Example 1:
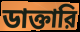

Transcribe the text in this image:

ডাক্তারি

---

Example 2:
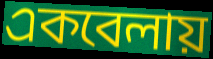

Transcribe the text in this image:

একবেলায়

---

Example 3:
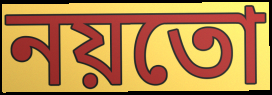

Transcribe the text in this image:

নয়তো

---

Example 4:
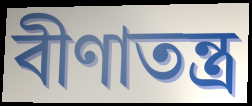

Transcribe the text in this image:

বীণাতন্ত্র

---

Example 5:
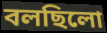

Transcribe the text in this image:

বলছিলো